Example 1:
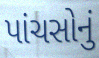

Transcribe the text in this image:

પાંચસોનું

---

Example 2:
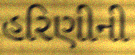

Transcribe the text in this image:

હરિણીની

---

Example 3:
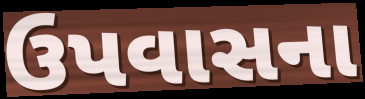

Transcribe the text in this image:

ઉપવાસના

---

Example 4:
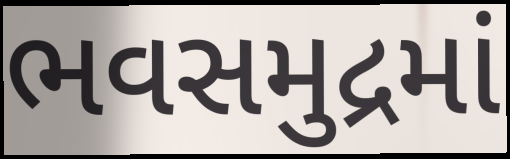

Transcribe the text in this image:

ભવસમુદ્રમાં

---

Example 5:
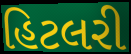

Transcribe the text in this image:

હિટલરી